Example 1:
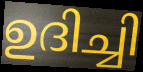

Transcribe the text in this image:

ഉദിച്ചി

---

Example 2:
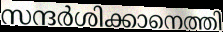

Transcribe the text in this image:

സന്ദർശിക്കാനെത്തി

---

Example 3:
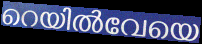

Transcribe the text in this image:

റെയിൽവേയെ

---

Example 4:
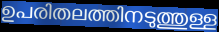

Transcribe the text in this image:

ഉപരിതലത്തിനടുത്തുള്ള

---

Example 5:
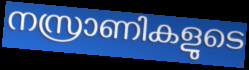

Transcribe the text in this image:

നസ്രാണികളുടെ